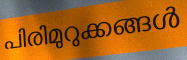
പിരിമുറുക്കങ്ങൾ